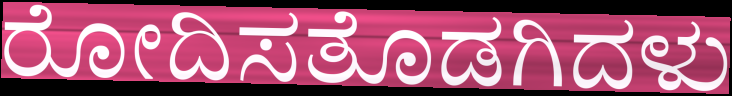
ರೋದಿಸತೊಡಗಿದಳು